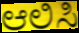
ಆಲಿಸಿ